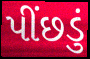
પીંછડું